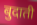
बुदाती